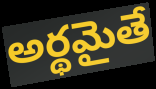
అర్థమైతే